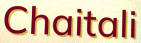
Chaitali